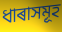
ধাৰাসমূহ